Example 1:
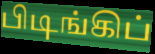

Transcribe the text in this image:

பிடிங்கிப்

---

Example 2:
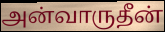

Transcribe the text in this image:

அன்வாருதீன்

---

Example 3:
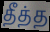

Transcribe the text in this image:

தீத்த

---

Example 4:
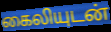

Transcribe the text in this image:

கைலியுடன்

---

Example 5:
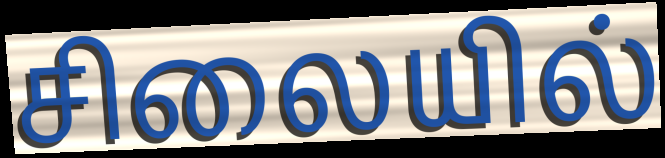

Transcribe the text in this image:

சிலையில்